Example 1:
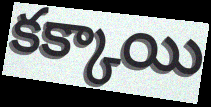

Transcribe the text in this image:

కక్కాయి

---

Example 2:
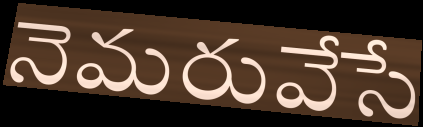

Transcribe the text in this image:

నెమరువేసే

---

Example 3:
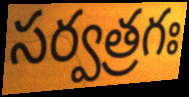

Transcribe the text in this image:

సర్వత్రగః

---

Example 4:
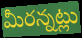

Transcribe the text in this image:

మీరన్నట్లు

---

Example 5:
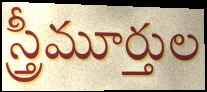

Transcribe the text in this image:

స్త్రీమూర్తుల